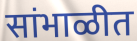
सांभाळीत